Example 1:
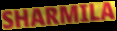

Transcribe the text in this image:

SHARMILA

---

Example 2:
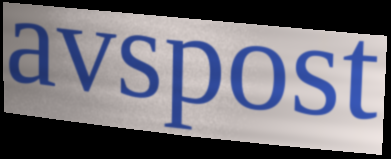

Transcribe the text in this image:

avspost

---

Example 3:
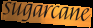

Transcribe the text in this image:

sugarcane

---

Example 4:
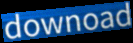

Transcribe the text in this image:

downoad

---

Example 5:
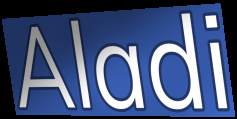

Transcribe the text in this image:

Aladi